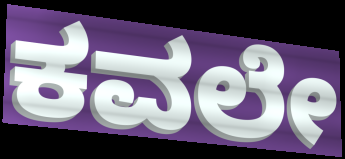
ಕವಲೇ